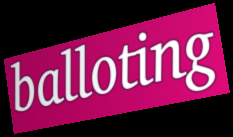
balloting